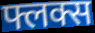
फ्लक्स